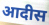
आदीस